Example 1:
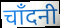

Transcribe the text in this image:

चाँदनी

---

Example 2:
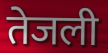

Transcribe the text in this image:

तेजली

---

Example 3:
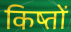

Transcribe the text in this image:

किष्तों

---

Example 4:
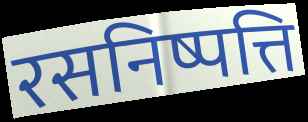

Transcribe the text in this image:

रसनिष्पत्ति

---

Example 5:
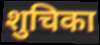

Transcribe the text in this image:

शुचिका